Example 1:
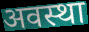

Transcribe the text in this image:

अवस्था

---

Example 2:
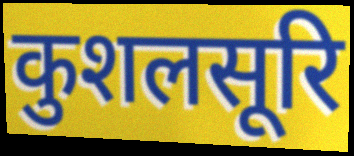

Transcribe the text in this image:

कुशलसूरि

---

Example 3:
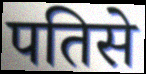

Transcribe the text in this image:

पतिसे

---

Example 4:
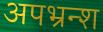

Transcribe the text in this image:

अपभ्रन्श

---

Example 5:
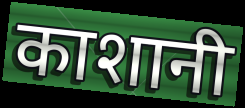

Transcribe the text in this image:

काशानी